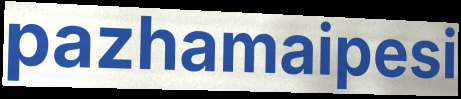
pazhamaipesi